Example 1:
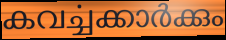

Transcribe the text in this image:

കവൎച്ചക്കാർക്കും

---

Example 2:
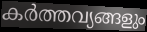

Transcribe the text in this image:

കർത്തവ്യങ്ങളും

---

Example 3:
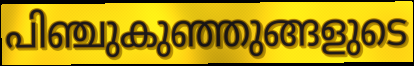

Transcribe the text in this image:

പിഞ്ചുകുഞ്ഞുങ്ങളുടെ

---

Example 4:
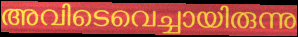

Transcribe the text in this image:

അവിടെവെച്ചായിരുന്നു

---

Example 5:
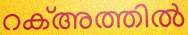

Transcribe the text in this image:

റക്അത്തിൽ